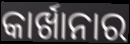
କାର୍ଖାନାର